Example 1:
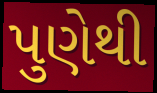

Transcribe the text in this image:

પુણેથી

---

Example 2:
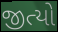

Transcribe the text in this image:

જીત્યો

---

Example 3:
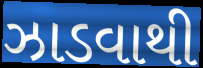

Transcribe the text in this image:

ઝાડવાથી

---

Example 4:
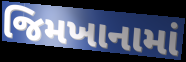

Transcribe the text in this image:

જિમખાનામાં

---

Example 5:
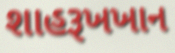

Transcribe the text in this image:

શાહરૂખખાન